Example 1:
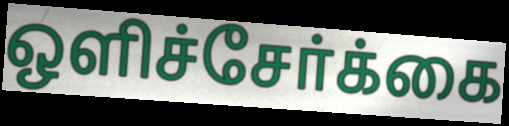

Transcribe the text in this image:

ஒளிச்சேர்க்கை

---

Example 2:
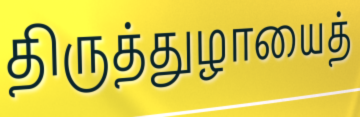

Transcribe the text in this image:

திருத்துழாயைத்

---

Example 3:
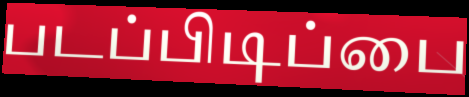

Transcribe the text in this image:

படப்பிடிப்பை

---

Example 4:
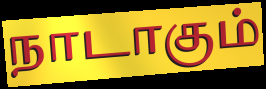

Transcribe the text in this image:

நாடாகும்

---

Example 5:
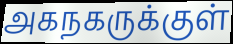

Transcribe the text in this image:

அகநகருக்குள்